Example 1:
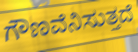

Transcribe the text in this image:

ಗೌಣವೆನಿಸುತ್ತದೆ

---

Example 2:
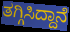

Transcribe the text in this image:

ತಗ್ಗಿಸಿದ್ದಾನೆ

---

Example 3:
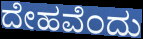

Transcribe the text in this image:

ದೇಹವೆಂದು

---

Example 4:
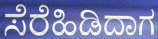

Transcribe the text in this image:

ಸೆರೆಹಿಡಿದಾಗ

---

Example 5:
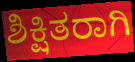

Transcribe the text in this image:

ಶಿಕ್ಷಿತರಾಗಿ